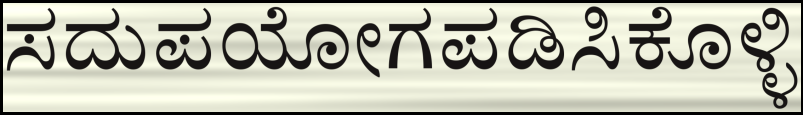
ಸದುಪಯೋಗಪಡಿಸಿಕೊಳ್ಳಿ